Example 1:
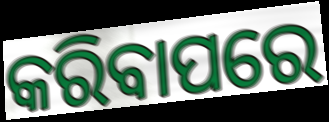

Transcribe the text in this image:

କରିବାପରେ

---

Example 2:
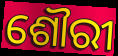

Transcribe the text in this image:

ଶୌରୀ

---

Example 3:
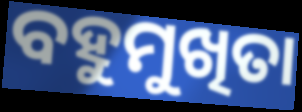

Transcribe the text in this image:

ବହୁମୁଖିତା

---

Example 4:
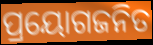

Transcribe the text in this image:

ପ୍ରୟୋଗଜନିତ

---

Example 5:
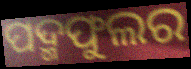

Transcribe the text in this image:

ପଦ୍ମଫୁଲର